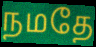
நமதே